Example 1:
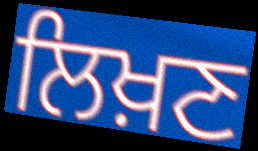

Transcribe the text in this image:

ਲਿਖ਼ਣ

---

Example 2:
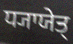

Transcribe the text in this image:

ਧ੍ਯਾਯੇਤ੍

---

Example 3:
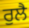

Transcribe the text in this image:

ਰੁਲੈ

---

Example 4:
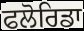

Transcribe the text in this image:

ਫਲੋਰਿਡਾ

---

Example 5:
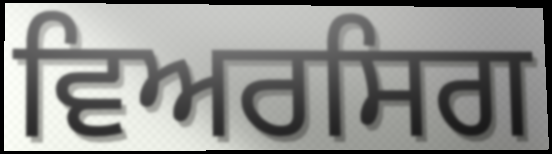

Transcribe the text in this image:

ਵਿਅਰਸਿਗ